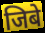
जिबे